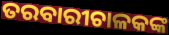
ତରବାରୀଚାଳକଙ୍କ